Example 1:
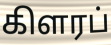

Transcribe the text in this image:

கிளரப்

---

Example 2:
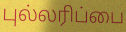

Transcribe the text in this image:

புல்லரிப்பை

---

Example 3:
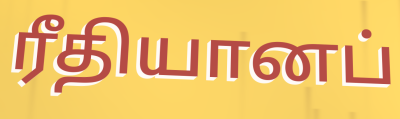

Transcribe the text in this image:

ரீதியானப்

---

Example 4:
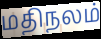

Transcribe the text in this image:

மதிநலம்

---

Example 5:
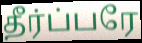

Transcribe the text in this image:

தீர்ப்பரே